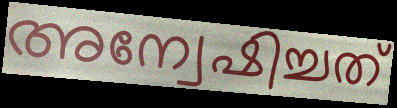
അന്വേഷിച്ചത്